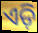
ଏଡ଼ି